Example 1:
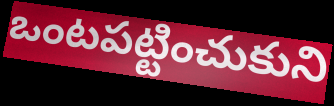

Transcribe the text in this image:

ఒంటపట్టించుకుని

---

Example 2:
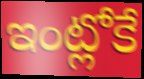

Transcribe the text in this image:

ఇంట్లోకే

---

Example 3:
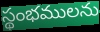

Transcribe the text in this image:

స్థంభములను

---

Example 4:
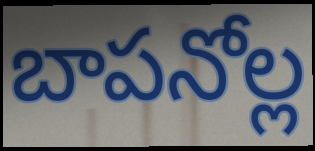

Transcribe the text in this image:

బాపనోల్ల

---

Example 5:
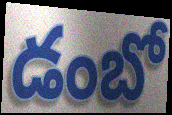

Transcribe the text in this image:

డంబో